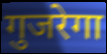
गुजरेगा